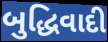
બુદ્ધિવાદી